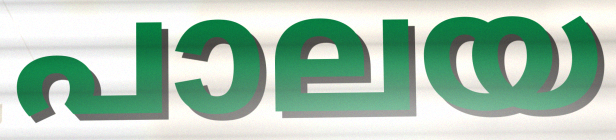
പാലയ